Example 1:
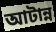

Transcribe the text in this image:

আটান্ন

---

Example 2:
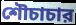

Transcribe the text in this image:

শৌচাচার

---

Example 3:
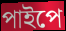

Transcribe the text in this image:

পাইপে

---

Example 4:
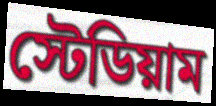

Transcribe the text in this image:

স্টেডিয়াম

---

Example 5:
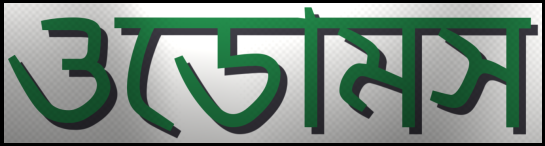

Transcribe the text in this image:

ওডোমস